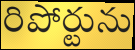
రిపోర్టును